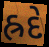
હ્રદે